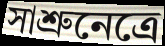
সাশ্রুনেত্রে